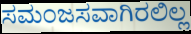
ಸಮಂಜಸವಾಗಿರಲಿಲ್ಲ